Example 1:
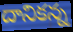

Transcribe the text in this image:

దానికన్న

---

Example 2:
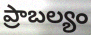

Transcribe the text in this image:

ప్రాబల్యం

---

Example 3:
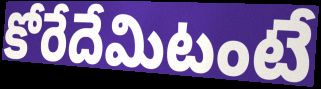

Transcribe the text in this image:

కోరేదేమిటంటే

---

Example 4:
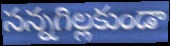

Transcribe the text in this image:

సన్నగిల్లకుండా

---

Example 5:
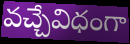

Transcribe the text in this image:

వచ్చేవిధంగా